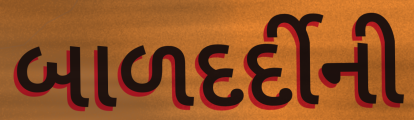
બાળદર્દીની